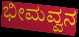
ಭೀಮವ್ವನ